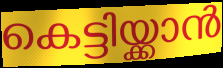
കെട്ടിയ്ക്കാൻ